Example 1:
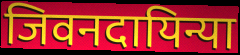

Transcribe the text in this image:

जिवनदायिन्या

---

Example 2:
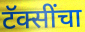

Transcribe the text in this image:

टॅक्सींचा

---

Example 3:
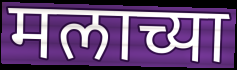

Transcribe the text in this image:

मलाच्या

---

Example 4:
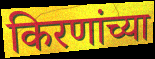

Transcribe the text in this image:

किरणांच्या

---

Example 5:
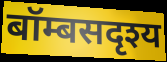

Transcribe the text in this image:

बॉम्बसदृश्य